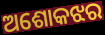
ଅଶୋକଝର